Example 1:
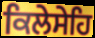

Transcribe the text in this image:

ਕਿਲੇਸੇਹਿ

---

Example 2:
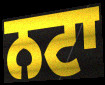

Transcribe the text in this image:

ਨਟਾ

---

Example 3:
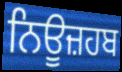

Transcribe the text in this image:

ਨਿਊਜ਼ਹਬ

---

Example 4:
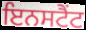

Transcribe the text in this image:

ਇਨਸਟੈਂਟ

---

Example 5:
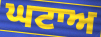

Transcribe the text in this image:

ਘਟਾਅ